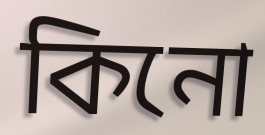
কিনো